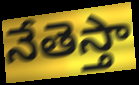
నేతెస్తా